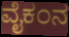
ವೈಕಂನ